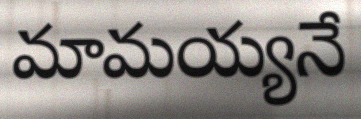
మామయ్యనే